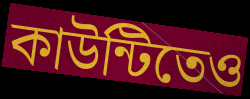
কাউন্টিতেও